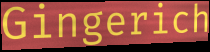
Gingerich